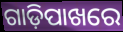
ଗାଡ଼ିପାଖରେ